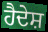
ਹੈਦੇਸ਼